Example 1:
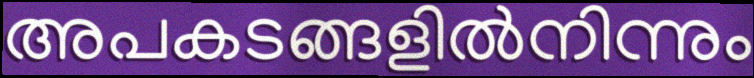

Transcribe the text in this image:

അപകടങ്ങളിൽനിന്നും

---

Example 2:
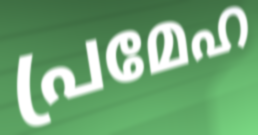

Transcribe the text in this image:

പ്രമേഹ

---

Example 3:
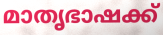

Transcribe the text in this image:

മാതൃഭാഷക്ക്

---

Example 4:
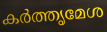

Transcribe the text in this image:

കർത്തൃമേശ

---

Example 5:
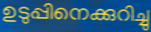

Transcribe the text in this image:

ഉടുപ്പിനെക്കുറിച്ചു